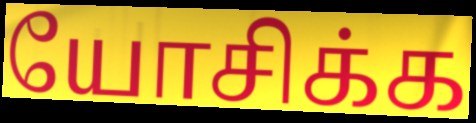
யோசிக்க